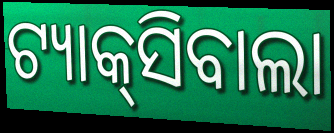
ଟ୍ୟାକ୍‌ସିବାଲା